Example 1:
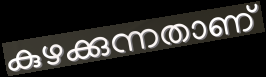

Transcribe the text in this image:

കുഴക്കുന്നതാണ്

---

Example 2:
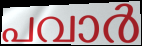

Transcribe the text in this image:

പവാർ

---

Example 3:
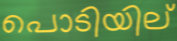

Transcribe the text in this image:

പൊടിയില്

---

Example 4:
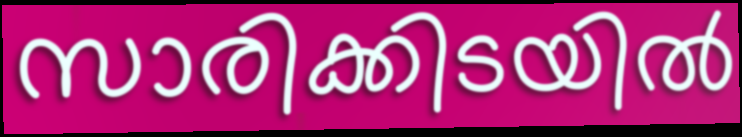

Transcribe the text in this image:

സാരിക്കിടയിൽ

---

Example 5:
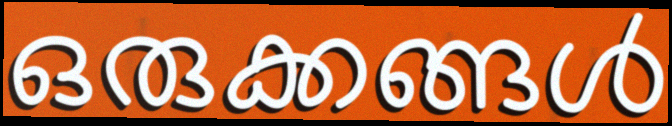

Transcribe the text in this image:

ഒരുക്കങ്ങൾ